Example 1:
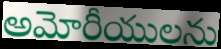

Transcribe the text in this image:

అమోరీయులను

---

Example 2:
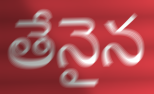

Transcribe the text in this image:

తేనైన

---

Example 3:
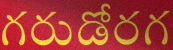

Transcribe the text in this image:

గరుడోరగ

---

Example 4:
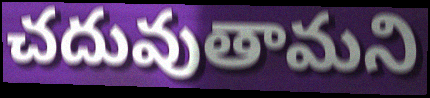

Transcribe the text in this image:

చదువుతామని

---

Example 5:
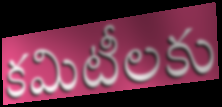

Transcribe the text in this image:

కమిటీలకు